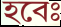
হবেঃ